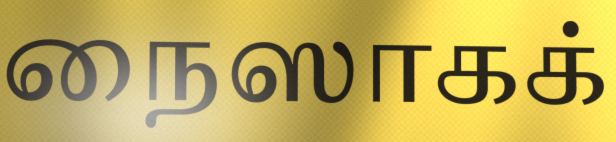
நைஸாகக்